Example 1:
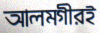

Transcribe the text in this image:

আলমগীরই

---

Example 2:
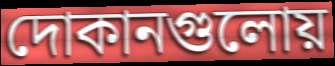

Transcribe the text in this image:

দোকানগুলোয়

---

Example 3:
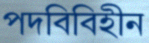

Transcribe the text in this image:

পদবিবিহীন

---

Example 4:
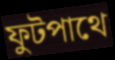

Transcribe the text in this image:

ফুটপাথে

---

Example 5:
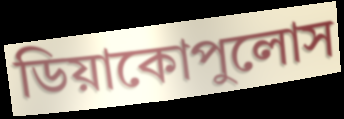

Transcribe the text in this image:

ডিয়াকোপুলোস